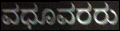
ವಧೂವರರು